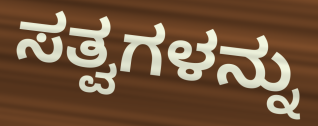
ಸತ್ವಗಳನ್ನು